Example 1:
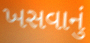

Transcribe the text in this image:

ખસવાનું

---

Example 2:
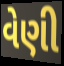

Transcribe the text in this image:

વેણી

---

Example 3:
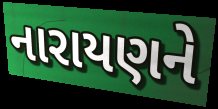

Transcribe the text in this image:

નારાયણને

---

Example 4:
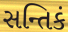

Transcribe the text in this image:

સન્તિકં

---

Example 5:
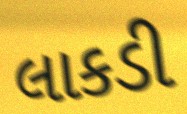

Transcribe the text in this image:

લાકડી